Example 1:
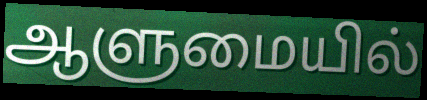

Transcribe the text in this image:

ஆளுமையில்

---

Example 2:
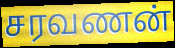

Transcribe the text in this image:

சரவணன்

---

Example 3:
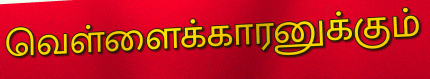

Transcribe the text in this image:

வெள்ளைக்காரனுக்கும்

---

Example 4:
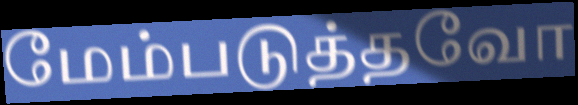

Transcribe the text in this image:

மேம்படுத்தவோ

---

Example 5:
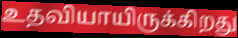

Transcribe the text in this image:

உதவியாயிருக்கிறது